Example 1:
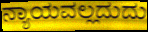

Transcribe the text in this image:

ನ್ಯಾಯವಲ್ಲದುದು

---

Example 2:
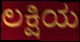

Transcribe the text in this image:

ಲಕ್ಷಿಯ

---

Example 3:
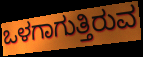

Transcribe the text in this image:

ಒಳಗಾಗುತ್ತಿರುವ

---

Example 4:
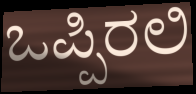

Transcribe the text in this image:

ಒಪ್ಪಿರಲಿ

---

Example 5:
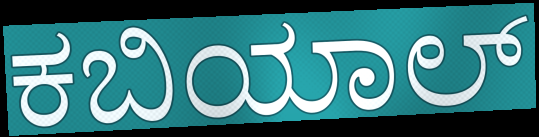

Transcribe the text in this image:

ಕಬಿಯಾಲ್